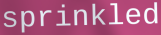
sprinkled